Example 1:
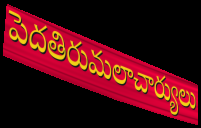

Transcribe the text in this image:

పెదతిరుమలాచార్యులు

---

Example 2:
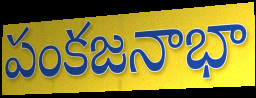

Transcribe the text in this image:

పంకజనాభా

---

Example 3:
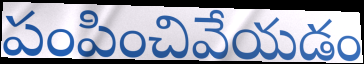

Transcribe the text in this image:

పంపించివేయడం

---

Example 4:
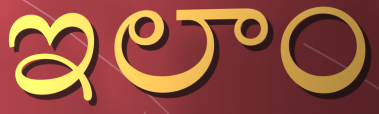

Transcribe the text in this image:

ఇలాం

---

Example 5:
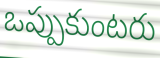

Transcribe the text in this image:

ఒప్పుకుంటరు